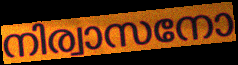
നിര്വാസനോ